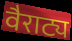
वैराट्य